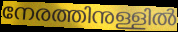
നേരത്തിനുള്ളിൽ